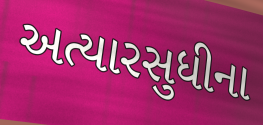
અત્યારસુધીના